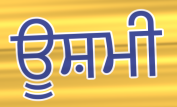
ਊਸ਼ਮੀ